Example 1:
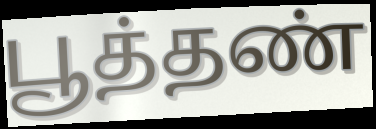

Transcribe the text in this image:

பூத்தண்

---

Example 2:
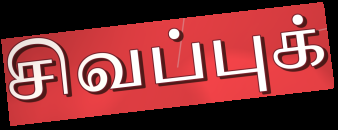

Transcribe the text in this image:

சிவப்புக்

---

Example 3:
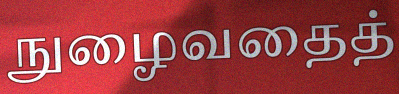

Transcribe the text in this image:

நுழைவதைத்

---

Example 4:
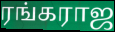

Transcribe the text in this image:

ரங்கராஜ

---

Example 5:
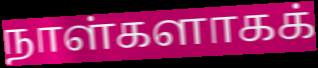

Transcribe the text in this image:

நாள்களாகக்